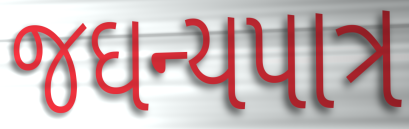
જઘન્યપાત્ર